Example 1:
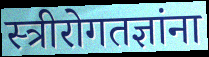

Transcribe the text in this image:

स्त्रीरोगतज्ञांना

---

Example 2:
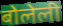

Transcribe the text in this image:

बोलेली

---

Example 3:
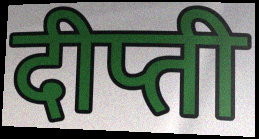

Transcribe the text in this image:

दीप्ती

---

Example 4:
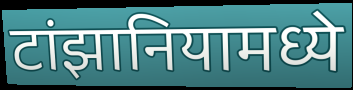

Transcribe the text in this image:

टांझानियामध्ये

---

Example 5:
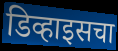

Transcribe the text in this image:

डिव्हाइसचा